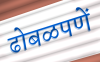
ढोबळपणें